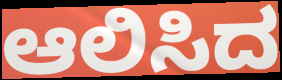
ಆಲಿಸಿದ